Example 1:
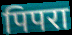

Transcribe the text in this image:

पिपरा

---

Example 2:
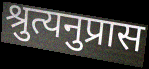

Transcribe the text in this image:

श्रुत्यनुप्रास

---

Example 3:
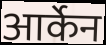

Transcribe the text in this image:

आर्केन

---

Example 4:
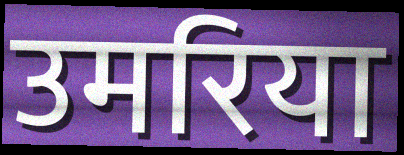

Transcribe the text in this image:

उमरिया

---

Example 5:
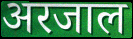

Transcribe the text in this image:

अरजाल